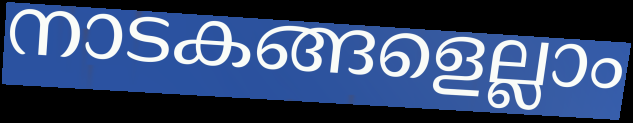
നാടകങ്ങളെല്ലാം